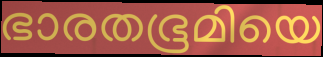
ഭാരതഭൂമിയെ